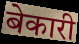
बेकारी